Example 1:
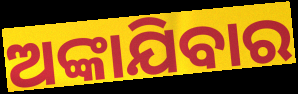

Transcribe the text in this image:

ଅଙ୍କାଯିବାର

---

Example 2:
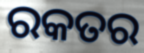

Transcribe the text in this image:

ରକତର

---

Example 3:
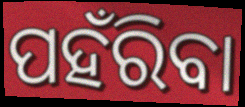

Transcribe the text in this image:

ପହଁରିବା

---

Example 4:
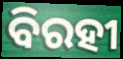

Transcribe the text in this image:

ବିରହୀ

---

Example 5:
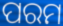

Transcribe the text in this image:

ପରମ